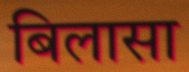
बिलासा